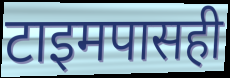
टाइमपासही